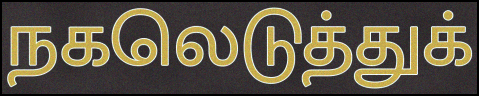
நகலெடுத்துக்